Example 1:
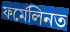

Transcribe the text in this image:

ফৰ্মেলিনত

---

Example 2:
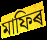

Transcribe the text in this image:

মাফিৰ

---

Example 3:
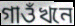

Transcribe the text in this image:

গাওঁখনে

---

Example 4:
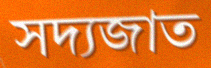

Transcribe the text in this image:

সদ্যজাত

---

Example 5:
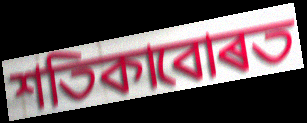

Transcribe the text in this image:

শতিকাবোৰত